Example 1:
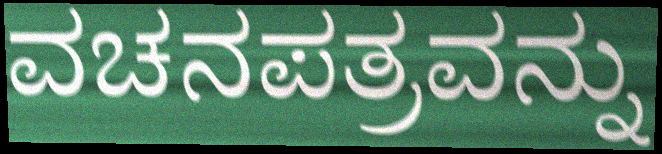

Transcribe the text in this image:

ವಚನಪತ್ರವನ್ನು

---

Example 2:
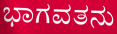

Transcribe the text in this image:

ಭಾಗವತನು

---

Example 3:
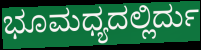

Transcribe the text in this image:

ಭೂಮಧ್ಯದಲ್ಲಿರ್ದು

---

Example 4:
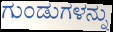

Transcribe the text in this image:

ಗುಂಡುಗಳನ್ನು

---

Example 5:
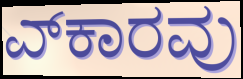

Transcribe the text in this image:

ಎ್‍ಕಾರವು